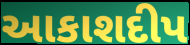
આકાશદીપ